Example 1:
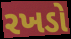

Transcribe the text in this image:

રખડો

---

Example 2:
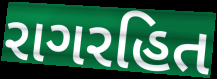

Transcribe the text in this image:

રાગરહિત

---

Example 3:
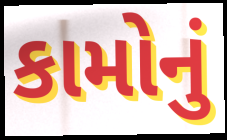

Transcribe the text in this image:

કામોનું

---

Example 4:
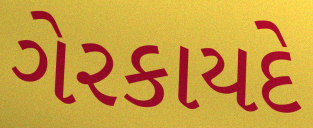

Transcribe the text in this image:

ગેરકાયદે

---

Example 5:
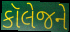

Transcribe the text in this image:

કૉલેજને